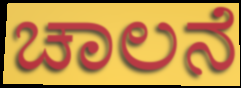
ಚಾಲನೆ